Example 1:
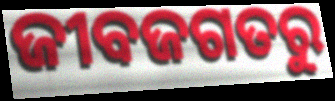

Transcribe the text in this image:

ଜୀବଜଗତରୁ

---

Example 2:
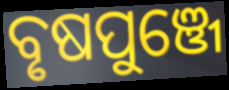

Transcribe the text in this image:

ବୃଷପୁଞ୍ଜେ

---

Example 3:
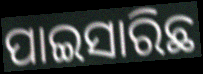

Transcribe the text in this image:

ପାଇସାରିଛ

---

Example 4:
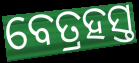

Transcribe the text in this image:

ବେତ୍ରହସ୍ତ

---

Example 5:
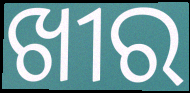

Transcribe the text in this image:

ଖୀର